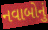
નવાબોનું